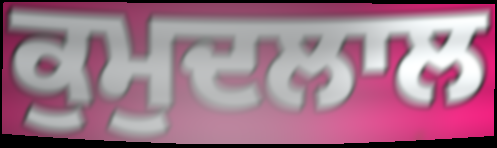
ਕੁਮੁਦਲਾਲ